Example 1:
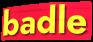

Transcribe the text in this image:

badle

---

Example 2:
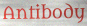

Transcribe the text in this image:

Antibody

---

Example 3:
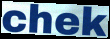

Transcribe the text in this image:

chek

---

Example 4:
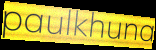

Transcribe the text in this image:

paulkhuna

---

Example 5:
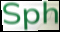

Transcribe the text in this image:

Sph